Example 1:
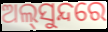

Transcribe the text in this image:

ଅଲ୍‌ସୁନ୍ଦରେ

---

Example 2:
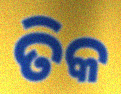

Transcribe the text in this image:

ତିକ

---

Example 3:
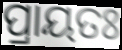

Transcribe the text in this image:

ପ୍ରାୟତଃ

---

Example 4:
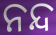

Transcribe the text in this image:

ନନ୍ଦ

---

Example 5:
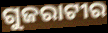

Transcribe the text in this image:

ଗୁଜରାଟୀର